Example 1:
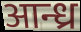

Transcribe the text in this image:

आन्ध्र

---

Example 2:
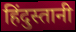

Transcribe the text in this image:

हिंदुस्तानी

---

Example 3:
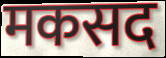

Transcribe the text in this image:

मकसद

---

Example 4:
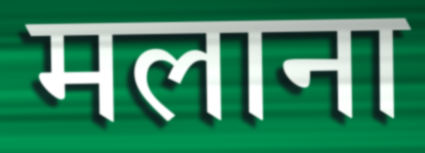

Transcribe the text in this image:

मलाना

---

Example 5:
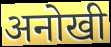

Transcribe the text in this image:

अनोखी